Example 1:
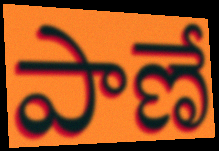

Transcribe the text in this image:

పాణే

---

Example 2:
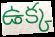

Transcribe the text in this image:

ఉక్క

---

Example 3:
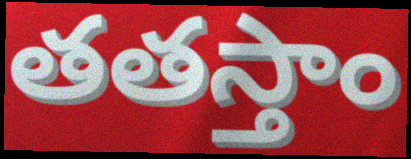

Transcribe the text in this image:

తతస్తాం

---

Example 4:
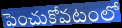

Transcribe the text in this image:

పెంచుకోవటంలో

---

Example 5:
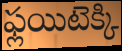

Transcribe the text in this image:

ఫ్లయిటెక్కి